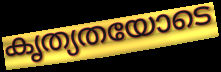
കൃത്യതയോടെ